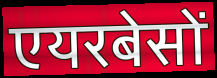
एयरबेसों